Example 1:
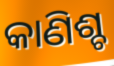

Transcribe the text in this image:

କାଣିଶ୍ଚ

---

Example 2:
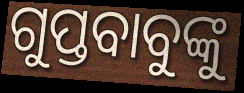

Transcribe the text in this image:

ଗୁପ୍ତବାବୁଙ୍କୁ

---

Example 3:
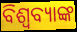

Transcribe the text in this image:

ବିଶ୍ୱବ୍ୟାଙ୍କ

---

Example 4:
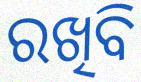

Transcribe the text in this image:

ରଖିବି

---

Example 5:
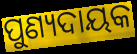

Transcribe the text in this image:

ପୁଣ୍ୟଦାୟକ